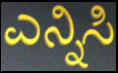
ಎನ್ನಿಸಿ